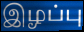
இழப்பு